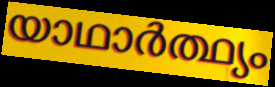
യാഥാർത്ഥ്യം